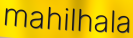
mahilhala